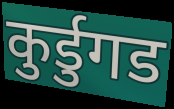
कुर्डुगड